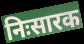
निःसारक